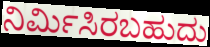
ನಿರ್ಮಿಸಿರಬಹುದು